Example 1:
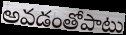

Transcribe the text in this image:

అవడంతోపాటు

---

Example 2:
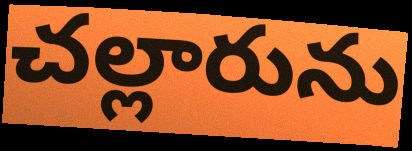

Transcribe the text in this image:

చల్లారును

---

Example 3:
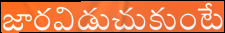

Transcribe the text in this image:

జారవిడుచుకుంటే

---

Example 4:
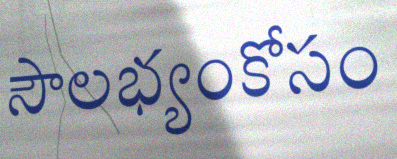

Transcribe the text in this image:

సౌలభ్యంకోసం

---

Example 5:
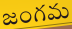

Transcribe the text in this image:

జంగమ